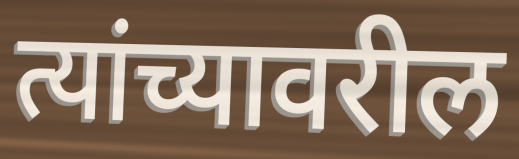
त्यांच्यावरील